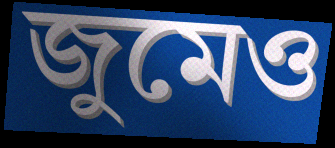
জুমেও